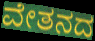
ವೇತನದ